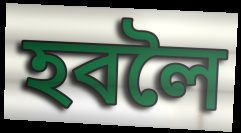
হবলৈ